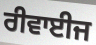
ਰੀਵਾਈਜ